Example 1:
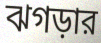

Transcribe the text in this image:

ঝগড়ার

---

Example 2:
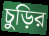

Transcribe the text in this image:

চুড়ির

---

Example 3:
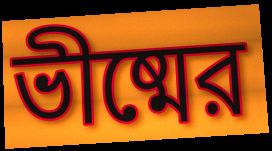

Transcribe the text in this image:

ভীষ্মের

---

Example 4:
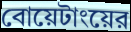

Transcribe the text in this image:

বোয়েটাংয়ের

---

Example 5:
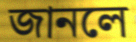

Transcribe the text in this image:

জানলে